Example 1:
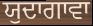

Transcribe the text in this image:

ਯੁਦਾਗਾਵਾ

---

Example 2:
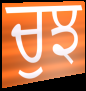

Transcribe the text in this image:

ਚੁਝ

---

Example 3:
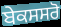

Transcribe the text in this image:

ਬੇਕਸਸਰੋ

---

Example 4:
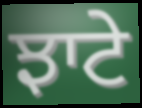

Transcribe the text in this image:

ਝਾਟੇ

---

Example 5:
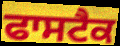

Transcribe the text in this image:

ਫਾਸਟੈਕ